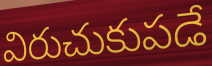
విరుచుకుపడే